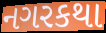
નગરકથા